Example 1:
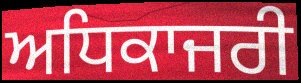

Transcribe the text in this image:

ਅਧਿਕਾਜਰੀ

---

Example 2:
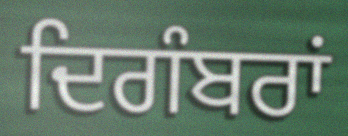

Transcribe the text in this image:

ਦਿਗੰਬਰਾਂ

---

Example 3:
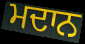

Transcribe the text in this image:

ਮਦਾਨ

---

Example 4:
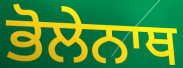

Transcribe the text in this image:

ਭੋਲੇਨਾਥ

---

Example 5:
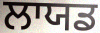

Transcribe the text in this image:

ਲਾਯਡ